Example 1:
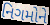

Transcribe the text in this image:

નિગમોને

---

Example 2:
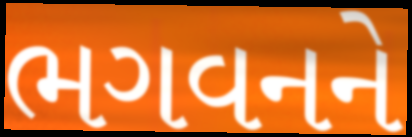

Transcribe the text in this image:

ભગવનને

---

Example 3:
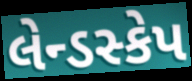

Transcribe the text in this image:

લેન્ડસ્કેપ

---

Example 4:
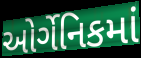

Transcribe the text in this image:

ઓર્ગેનિકમાં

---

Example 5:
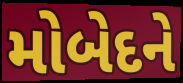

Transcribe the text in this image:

મોબેદને